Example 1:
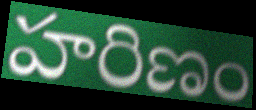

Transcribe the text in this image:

హరిణం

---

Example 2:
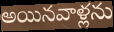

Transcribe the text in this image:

అయినవాళ్లను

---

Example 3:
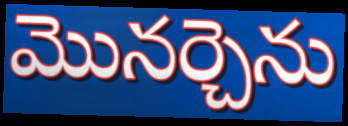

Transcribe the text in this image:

మొనర్చెను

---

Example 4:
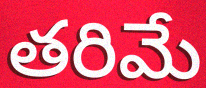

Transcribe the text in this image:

తరిమే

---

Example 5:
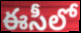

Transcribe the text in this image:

ఈసీలో